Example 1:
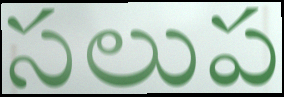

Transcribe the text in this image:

సలుప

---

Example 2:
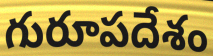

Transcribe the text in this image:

గురూపదేశం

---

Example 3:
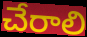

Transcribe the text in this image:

చేరాలి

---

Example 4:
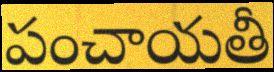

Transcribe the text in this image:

పంచాయతీ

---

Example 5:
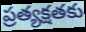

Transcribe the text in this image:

ప్రత్యక్షతకు